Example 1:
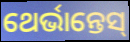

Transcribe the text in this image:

ଥେର୍ଭାନ୍ତେସ୍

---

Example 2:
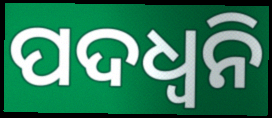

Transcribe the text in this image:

ପଦଧ୍ଵନି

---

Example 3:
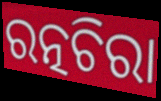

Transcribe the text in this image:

ରତ୍ନଚିରା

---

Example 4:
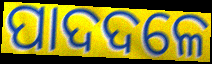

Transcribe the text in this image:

ପାଦଦଳେ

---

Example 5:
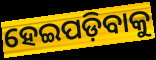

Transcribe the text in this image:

ହେଇପଡ଼ିବାକୁ